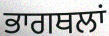
ਭਾਗਥਲਾਂ